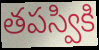
తపస్వికి